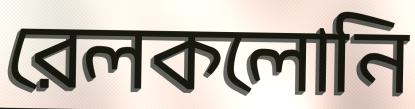
রেলকলোনি